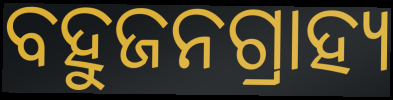
ବହୁଜନଗ୍ରାହ୍ୟ